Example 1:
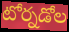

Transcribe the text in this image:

టోర్నడోల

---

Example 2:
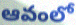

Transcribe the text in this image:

ఆవంలో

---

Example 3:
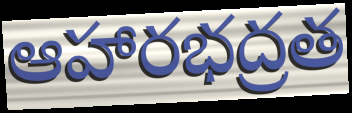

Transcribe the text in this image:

ఆహారభద్రత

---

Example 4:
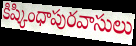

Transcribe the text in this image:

కిష్కింధాపురవాసులు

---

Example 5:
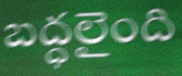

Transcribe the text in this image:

బద్ధలైంది